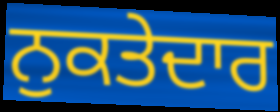
ਨੁਕਤੇਦਾਰ